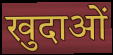
खुदाओं